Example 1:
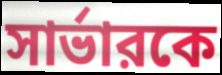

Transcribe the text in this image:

সার্ভারকে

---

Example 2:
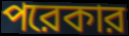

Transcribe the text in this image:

পরেকার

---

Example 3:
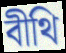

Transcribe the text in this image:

বীথি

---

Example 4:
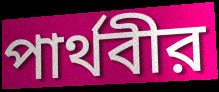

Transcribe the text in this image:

পার্থবীর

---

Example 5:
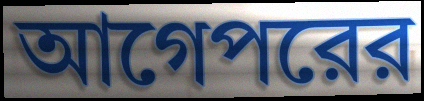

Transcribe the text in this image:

আগেপরের